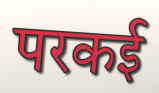
परकई